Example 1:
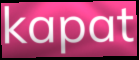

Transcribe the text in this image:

kapat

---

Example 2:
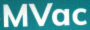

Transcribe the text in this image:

MVac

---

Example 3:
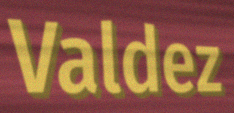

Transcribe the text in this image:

Valdez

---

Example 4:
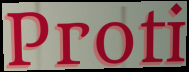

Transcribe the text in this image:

Proti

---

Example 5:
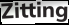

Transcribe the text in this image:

Zitting